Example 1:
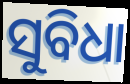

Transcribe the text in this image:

ସୁବିଧା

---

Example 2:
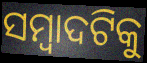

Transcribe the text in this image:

ସମ୍ୱାଦଟିକୁ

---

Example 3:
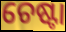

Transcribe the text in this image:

ଚେଷ୍ଟା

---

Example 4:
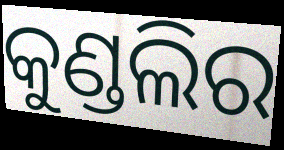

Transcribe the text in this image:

କୁଣ୍ଡଲିର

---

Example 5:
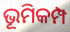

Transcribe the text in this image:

ଭୂମିକମ୍ପ